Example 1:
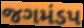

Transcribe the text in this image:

જગમંડપ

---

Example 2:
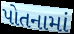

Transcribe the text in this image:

પોતનામાં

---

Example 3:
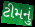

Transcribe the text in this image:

ટીમનું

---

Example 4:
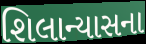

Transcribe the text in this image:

શિલાન્યાસના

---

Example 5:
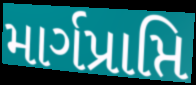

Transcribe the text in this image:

માર્ગપ્રાપ્તિ